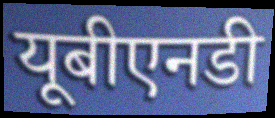
यूबीएनडी